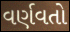
વર્ણવતો